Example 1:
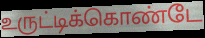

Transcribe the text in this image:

உருட்டிக்கொண்டே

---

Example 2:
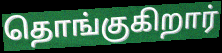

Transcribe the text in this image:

தொங்குகிறார்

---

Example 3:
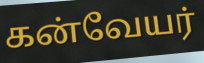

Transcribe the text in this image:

கன்வேயர்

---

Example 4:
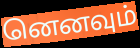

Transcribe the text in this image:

னெனவும்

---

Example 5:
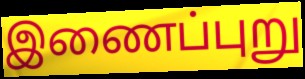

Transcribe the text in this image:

இணைப்புறு